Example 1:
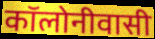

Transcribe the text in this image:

कॉलोनीवासी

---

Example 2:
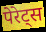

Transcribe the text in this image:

पेरेट्स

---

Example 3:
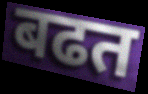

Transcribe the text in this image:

बढत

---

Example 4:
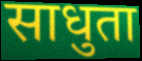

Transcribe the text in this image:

साधुता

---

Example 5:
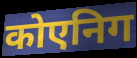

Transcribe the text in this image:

कोएनिग